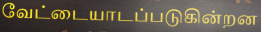
வேட்டையாடப்படுகின்றன